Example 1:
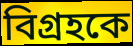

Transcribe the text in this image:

বিগ্রহকে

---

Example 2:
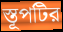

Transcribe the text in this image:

স্তূপটির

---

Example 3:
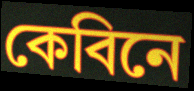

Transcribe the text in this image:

কেবিনে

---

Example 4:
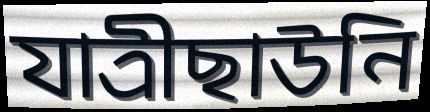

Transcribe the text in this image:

যাত্রীছাউনি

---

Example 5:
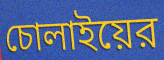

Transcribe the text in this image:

চোলাইয়ের